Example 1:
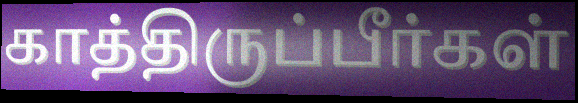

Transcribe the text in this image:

காத்திருப்பீர்கள்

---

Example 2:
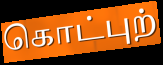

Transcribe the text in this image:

கொட்புற்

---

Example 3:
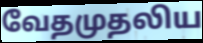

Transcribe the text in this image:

வேதமுதலிய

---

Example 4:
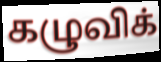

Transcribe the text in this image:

கழுவிக்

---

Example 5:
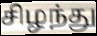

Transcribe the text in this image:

சிழந்து